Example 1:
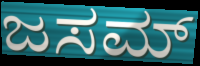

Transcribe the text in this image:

ಜಸಮ್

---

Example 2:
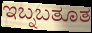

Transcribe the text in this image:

ಇಬ್ನಬತೂತ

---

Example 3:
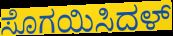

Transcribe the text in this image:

ಸೊಗಯಿಸಿದಳ್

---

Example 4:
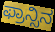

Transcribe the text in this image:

ಫ್ರಾನ್ಸಿನ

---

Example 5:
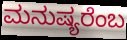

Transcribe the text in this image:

ಮನುಷ್ಯರೆಂಬ